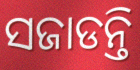
ସଜାଡନ୍ତି